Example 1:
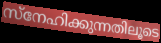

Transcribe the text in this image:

സ്നേഹിക്കുന്നതിലൂടെ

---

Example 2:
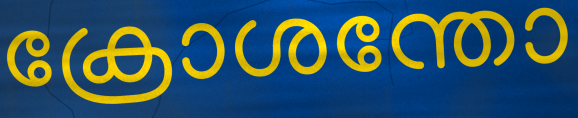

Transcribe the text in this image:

ക്രോശന്തോ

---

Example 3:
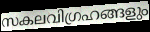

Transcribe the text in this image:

സകലവിഗ്രഹങ്ങളും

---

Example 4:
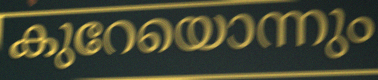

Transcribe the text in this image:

കുറേയൊന്നും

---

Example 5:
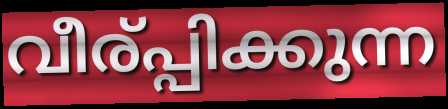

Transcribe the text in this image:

വീര്പ്പിക്കുന്ന